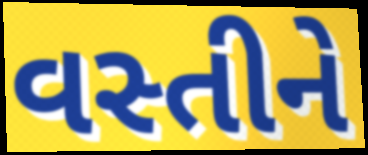
વસ્તીને